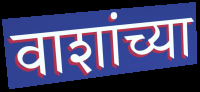
वाशांच्या